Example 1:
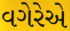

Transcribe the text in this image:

વગેરેએ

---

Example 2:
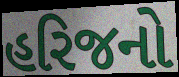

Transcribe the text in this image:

હરિજનો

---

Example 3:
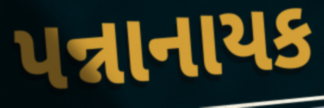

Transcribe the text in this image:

પન્નાનાયક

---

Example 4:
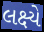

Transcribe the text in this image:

લક્ષ્યે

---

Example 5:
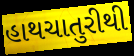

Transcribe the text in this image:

હાથચાતુરીથી